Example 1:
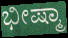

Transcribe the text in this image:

ಭೀಷ್ಮಾ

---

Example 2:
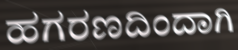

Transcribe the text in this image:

ಹಗರಣದಿಂದಾಗಿ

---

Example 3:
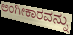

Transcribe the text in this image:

ಅಂಗೀಕಾರವನ್ನು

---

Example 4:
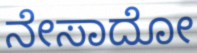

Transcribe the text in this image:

ನೇಸಾದೋ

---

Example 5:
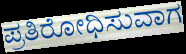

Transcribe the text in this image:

ಪ್ರತಿರೋಧಿಸುವಾಗ